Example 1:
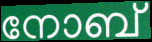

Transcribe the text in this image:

നോബ്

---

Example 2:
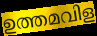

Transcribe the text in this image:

ഉത്തമവിള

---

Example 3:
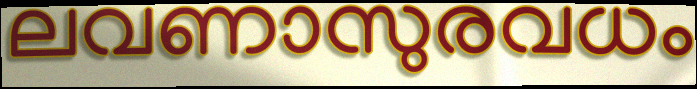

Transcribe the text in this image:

ലവണാസുരവധം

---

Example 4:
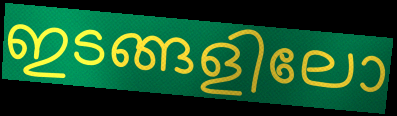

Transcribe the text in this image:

ഇടങ്ങളിലോ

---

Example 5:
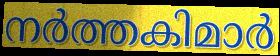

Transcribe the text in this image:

നർത്തകിമാർ